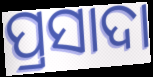
ପ୍ରସାଦା